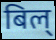
बिल्